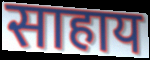
साहाय